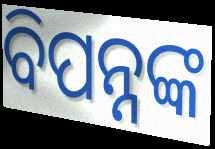
ବିପନ୍ନଙ୍କ